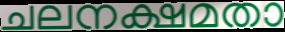
ചലനക്ഷമതാ